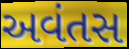
અવંતસ